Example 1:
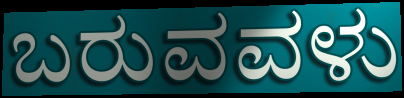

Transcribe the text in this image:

ಬರುವವಳು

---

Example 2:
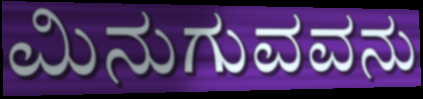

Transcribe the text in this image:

ಮಿನುಗುವವನು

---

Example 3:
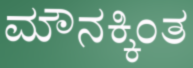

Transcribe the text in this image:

ಮೌನಕ್ಕಿಂತ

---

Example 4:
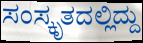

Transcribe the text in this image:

ಸಂಸ್ಕೃತದಲ್ಲಿದ್ದು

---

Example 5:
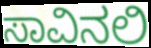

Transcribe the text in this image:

ಸಾವಿನಲಿ